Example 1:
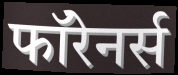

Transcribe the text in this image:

फॉरेनर्स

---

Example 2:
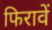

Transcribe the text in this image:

फिरावें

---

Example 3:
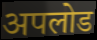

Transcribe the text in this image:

अपलोड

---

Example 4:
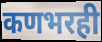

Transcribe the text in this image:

कणभरही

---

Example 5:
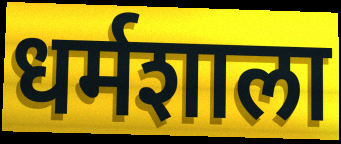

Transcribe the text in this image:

धर्मशाला